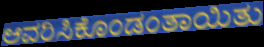
ಆವರಿಸಿಕೊಂಡಂತಾಯಿತು